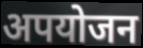
अपयोजन